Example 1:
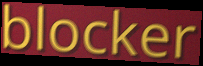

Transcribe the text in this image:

blocker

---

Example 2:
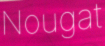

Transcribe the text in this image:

Nougat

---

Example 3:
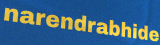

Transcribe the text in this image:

narendrabhide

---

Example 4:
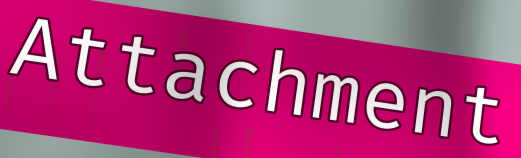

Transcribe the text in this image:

Attachment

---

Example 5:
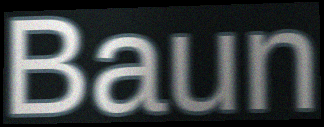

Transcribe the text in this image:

Baun